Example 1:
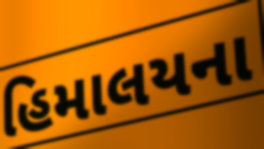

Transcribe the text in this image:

હિમાલયના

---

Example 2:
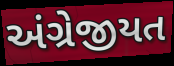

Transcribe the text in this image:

અંગ્રેજીયત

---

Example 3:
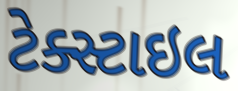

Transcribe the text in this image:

ટેક્સ્ટાઇલ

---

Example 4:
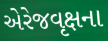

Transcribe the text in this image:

એરેજવૃક્ષના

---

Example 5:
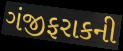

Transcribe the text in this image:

ગંજીફરાકની